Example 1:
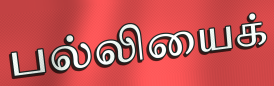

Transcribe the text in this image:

பல்லியைக்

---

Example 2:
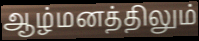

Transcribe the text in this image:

ஆழ்மனத்திலும்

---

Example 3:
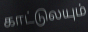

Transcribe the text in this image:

காட்டுலயும்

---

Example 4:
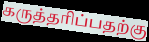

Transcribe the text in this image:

கருத்தரிப்பதற்கு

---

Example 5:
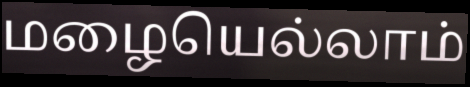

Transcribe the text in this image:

மழையெல்லாம்